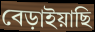
বেড়াইয়াছি